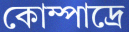
কোম্পাদ্রে